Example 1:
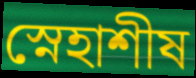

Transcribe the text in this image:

স্নেহাশীষ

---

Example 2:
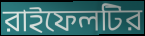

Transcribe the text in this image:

রাইফেলটির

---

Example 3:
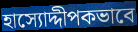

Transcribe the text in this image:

হাস্যোদ্দীপকভাবে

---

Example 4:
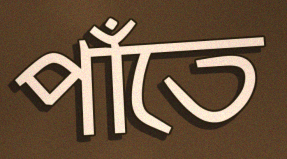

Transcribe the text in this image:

পাঁতে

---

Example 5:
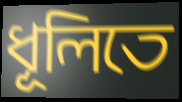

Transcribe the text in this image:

ধূলিতে